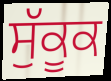
ਸੁੱਕੂਕ